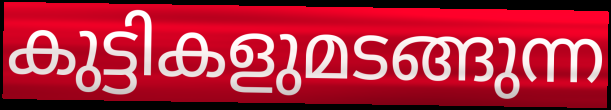
കുട്ടികളുമടങ്ങുന്ന